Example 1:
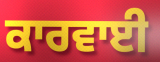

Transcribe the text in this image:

ਕਾਰਵਾਈ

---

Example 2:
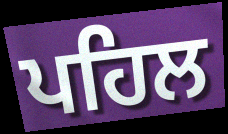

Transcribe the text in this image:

ਪਹਿਲ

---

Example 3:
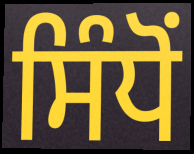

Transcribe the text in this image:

ਸਿੰਧੋਂ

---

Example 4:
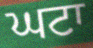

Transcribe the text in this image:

ਘਟਾ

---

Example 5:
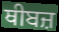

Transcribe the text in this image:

ਥੀਬਜ਼